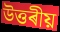
উত্তৰীয়